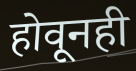
होवूनही